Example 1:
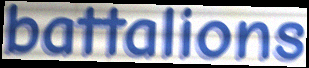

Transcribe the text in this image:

battalions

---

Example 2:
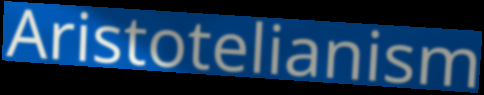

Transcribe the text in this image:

Aristotelianism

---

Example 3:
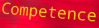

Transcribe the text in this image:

Competence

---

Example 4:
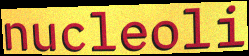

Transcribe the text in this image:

nucleoli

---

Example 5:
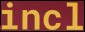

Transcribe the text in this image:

incl